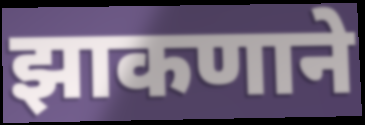
झाकणाने